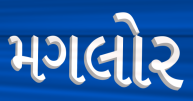
મગલોર